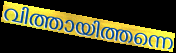
വിത്തായിത്തന്നെ